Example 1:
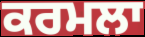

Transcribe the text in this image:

ਕਰਮਲਾ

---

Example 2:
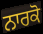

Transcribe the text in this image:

ਨਾਰਕੋ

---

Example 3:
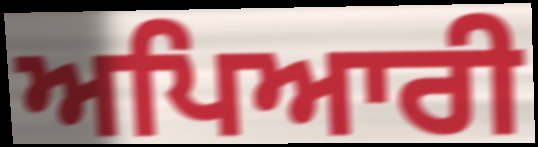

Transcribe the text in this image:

ਅਪਿਆਰੀ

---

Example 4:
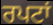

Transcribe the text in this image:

ਰਪਟਾਂ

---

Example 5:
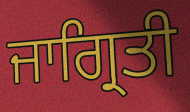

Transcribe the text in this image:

ਜਾਗ੍ਰਿਤੀ